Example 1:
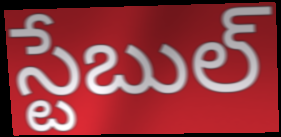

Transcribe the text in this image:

స్టేబుల్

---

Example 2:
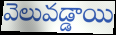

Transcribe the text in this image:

వెలువడ్డాయి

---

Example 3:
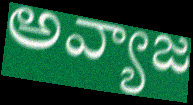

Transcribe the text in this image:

అవ్యాజ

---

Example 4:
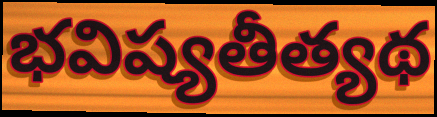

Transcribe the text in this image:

భవిష్యతీత్యథ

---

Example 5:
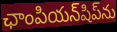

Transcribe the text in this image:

ఛాంపియన్‌షిప్‌ను